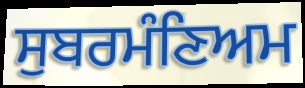
ਸੁਬਰਮੰਣਿਅਮ